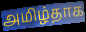
அமிழ்தாக